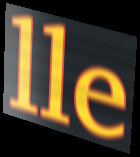
lle